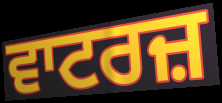
ਵਾਟਰਜ਼